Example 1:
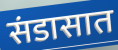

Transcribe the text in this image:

संडासात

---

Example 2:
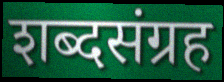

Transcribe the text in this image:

शब्दसंग्रह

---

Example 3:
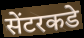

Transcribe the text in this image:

सेंटरकडे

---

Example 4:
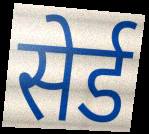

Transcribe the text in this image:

सेर्ड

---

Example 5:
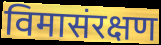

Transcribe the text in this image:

विमासंरक्षण